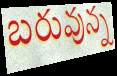
బరువున్న